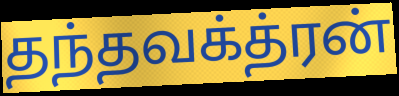
தந்தவக்த்ரன்